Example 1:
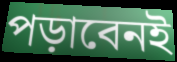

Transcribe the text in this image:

পড়াবেনই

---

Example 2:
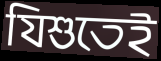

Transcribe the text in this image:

যিশুতেই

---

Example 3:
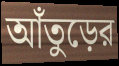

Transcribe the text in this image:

আঁতুড়ের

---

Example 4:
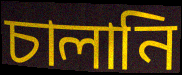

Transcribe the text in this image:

চালানি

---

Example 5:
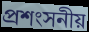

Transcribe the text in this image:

প্রশংসনীয়